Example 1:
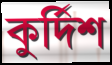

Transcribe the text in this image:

কুর্দিশ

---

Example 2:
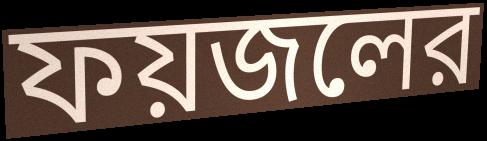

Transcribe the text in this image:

ফয়জলের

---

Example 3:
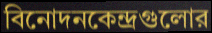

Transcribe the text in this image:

বিনোদনকেন্দ্রগুলোর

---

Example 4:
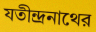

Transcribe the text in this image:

যতীন্দ্রনাথের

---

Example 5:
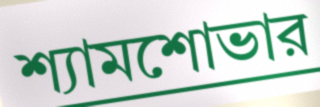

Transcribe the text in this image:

শ্যামশোভার